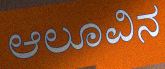
ಆಲೂವಿನ